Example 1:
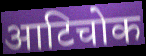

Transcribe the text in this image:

आटिचोक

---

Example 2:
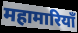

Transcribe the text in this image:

महामारियाँ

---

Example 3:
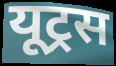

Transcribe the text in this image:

यूट्रस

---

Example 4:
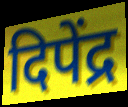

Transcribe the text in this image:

दिपेंद्र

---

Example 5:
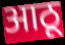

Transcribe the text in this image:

आठू